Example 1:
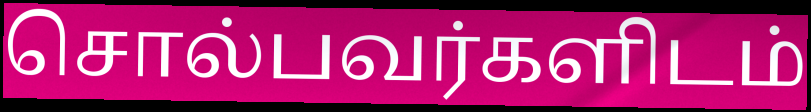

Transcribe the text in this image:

சொல்பவர்களிடம்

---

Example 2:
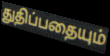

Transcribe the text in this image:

துதிப்பதையும்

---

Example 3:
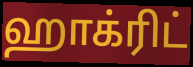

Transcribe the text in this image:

ஹாக்ரிட்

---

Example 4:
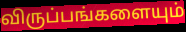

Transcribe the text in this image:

விருப்பங்களையும்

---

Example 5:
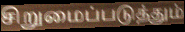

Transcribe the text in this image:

சிறுமைப்படுத்தும்